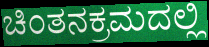
ಚಿಂತನಕ್ರಮದಲ್ಲಿ